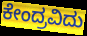
ಕೇಂದ್ರವಿದು